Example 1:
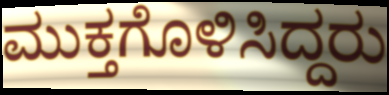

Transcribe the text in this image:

ಮುಕ್ತಗೊಳಿಸಿದ್ದರು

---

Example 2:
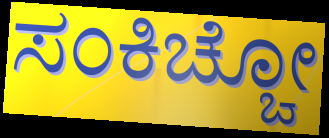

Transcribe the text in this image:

ಸಂಕಿಚ್ಚೋ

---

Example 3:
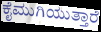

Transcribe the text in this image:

ಕೈಮುಗಿಯುತ್ತಾರೆ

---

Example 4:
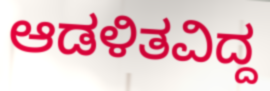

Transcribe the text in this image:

ಆಡಳಿತವಿದ್ದ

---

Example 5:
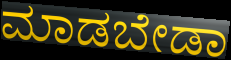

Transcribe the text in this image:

ಮಾಡಬೇಡಾ